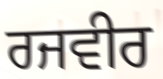
ਰਜਵੀਰ